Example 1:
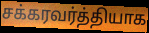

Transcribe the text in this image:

சக்கரவர்த்தியாக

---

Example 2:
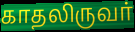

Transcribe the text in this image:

காதலிருவர்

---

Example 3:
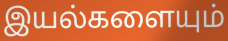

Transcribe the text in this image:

இயல்களையும்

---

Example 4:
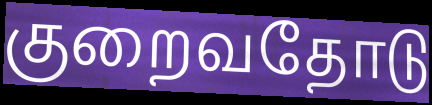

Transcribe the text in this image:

குறைவதோடு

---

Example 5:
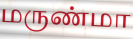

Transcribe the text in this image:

மருண்மா